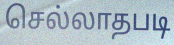
செல்லாதபடி